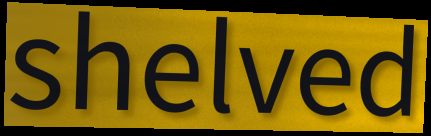
shelved